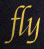
fly